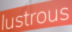
lustrous